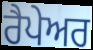
ਰੈਪੇਅਰ